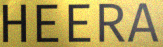
HEERA